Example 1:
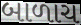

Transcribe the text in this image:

બાળાચ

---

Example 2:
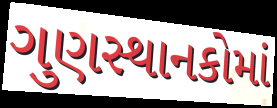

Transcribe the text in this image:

ગુણસ્થાનકોમાં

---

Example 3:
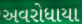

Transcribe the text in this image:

અવરોધાયા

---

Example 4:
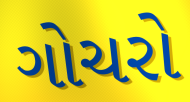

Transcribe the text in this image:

ગોચરો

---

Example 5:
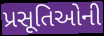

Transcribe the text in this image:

પ્રસૂતિઓની